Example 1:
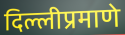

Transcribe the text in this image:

दिल्लीप्रमाणे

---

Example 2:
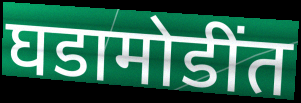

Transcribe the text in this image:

घडामोडींत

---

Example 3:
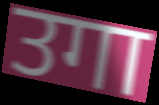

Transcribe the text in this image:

उगा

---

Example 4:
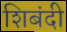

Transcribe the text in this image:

शिबंदी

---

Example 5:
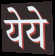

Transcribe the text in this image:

येये